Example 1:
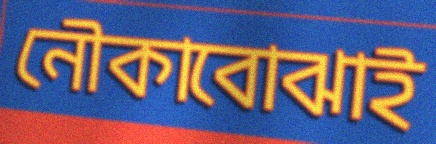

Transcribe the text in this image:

নৌকাবোঝাই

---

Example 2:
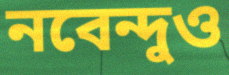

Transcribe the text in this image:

নবেন্দুও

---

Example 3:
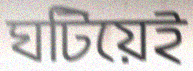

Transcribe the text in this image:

ঘটিয়েই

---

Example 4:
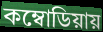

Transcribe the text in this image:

কম্বোডিয়ায়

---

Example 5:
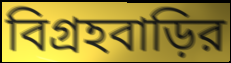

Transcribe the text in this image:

বিগ্রহবাড়ির